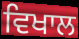
ਵਿਖਾਲ